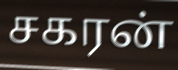
சகரன்